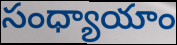
సంధ్యాయాం